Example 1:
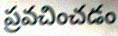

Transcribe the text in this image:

ప్రవచించడం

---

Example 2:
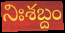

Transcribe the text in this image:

నిఃశబ్దం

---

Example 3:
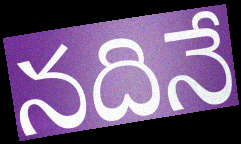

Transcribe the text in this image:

నదినే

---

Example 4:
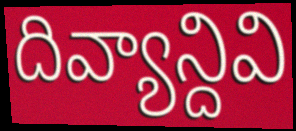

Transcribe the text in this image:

దివ్యాన్దివి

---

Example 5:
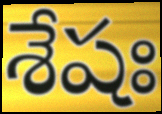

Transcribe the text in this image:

శేషః